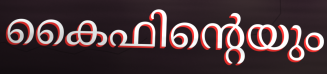
കൈഫിന്റെയും